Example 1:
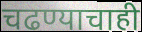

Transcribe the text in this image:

चढण्याचाही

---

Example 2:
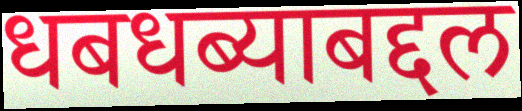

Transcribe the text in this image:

धबधब्याबद्दल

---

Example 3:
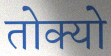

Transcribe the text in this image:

तोक्यो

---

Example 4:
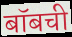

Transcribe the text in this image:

बॉबची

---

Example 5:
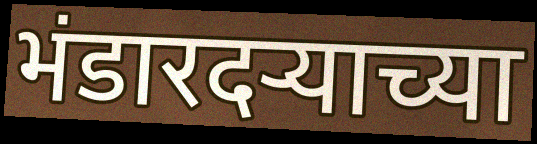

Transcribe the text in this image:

भंडारदर्‍याच्या